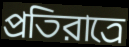
প্রতিরাত্রে